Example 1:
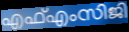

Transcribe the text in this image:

എഫ്എംസിജി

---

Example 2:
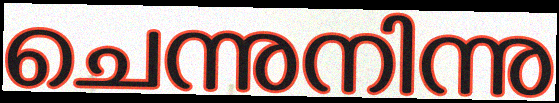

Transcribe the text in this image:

ചെന്നുനിന്നു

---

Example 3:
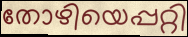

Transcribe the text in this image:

തോഴിയെപ്പറ്റി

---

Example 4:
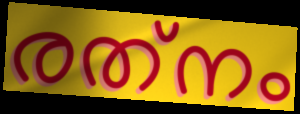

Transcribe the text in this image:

രത്‌നം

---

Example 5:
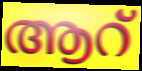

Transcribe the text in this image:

ആറ്